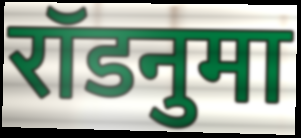
रॉडनुमा